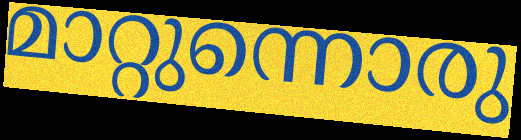
മാറ്റുന്നൊരു